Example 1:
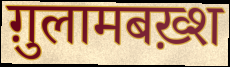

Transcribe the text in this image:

ग़ुलामबख़्श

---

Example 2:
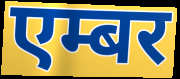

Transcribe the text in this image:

एम्बर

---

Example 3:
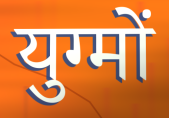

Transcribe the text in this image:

युग्मों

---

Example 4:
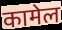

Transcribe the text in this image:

कामेल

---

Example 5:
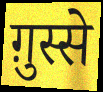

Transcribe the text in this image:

ग़ुस्से